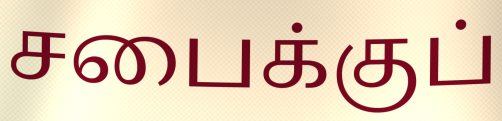
சபைக்குப்